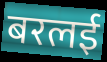
बरलई